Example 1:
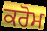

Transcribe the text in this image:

ਕਰੋਮ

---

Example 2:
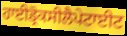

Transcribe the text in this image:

ਹਾਈਡ੍ਰੋਕਸੀਲੈਪੇਟਾਈਟ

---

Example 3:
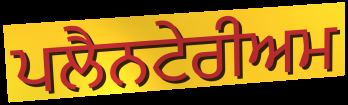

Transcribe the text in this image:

ਪਲੈਨਟੇਰੀਅਮ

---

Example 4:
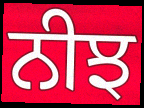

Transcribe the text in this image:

ਨੀਝ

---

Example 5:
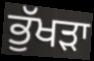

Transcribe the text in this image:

ਭੁੱਖੜਾ